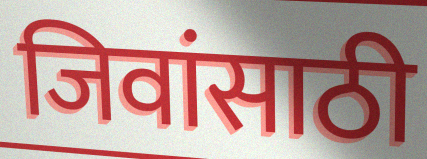
जिवांसाठी